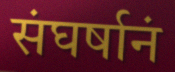
संघर्षानं